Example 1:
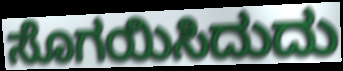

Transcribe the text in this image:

ಸೊಗಯಿಸಿದುದು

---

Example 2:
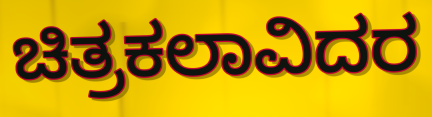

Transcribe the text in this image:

ಚಿತ್ರಕಲಾವಿದರ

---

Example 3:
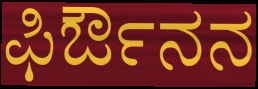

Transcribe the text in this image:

ಫಿರ್ಔನನ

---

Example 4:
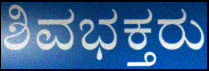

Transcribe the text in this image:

ಶಿವಭಕ್ತರು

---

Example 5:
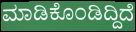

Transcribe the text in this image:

ಮಾಡಿಕೊಂಡಿದ್ದಿದೆ